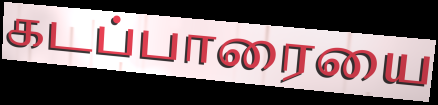
கடப்பாரையை